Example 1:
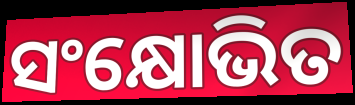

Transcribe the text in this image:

ସଂକ୍ଷୋଭିତ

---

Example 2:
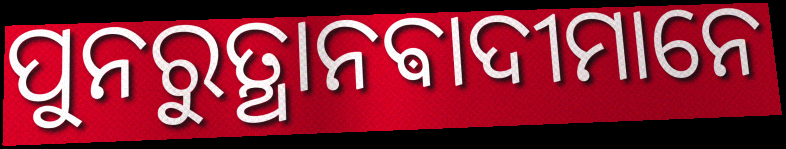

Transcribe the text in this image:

ପୁନରୁତ୍ଥାନଵାଦୀମାନେ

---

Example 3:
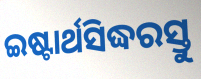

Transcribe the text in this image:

ଇଷ୍ଟାର୍ଥସିଦ୍ଧରସ୍ତୁ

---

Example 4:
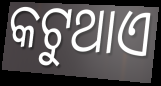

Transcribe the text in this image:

କଟୁଥାଏ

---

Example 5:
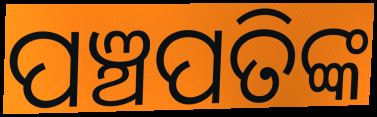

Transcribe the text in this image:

ପଞ୍ଚପତିଙ୍କ